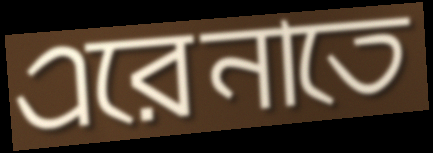
এরেনাতে